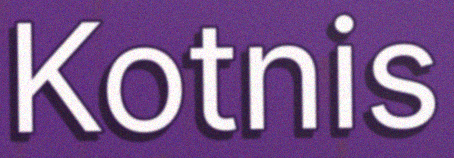
Kotnis